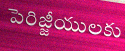
పెరిజ్జీయులకు